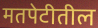
मतपेटीतील